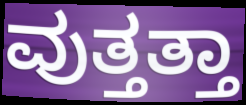
ವುತ್ತತ್ತಾ